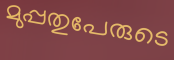
മുപ്പതുപേരുടെ